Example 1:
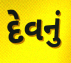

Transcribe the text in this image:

દેવનું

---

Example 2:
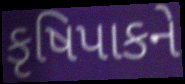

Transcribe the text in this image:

કૃષિપાકને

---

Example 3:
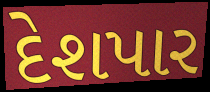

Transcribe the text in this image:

દેશપાર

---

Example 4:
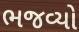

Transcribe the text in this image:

ભજવ્યો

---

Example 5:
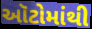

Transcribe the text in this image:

ઑટોમાંથી